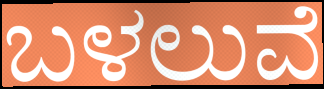
ಬಳಲುವೆ